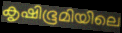
കൃഷിഭൂമിയിലെ